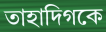
তাহাদিগকে